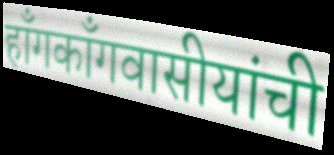
हाँगकाँगवासीयांची